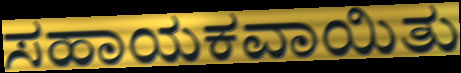
ಸಹಾಯಕವಾಯಿತು